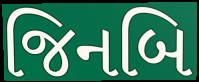
જિનબિ